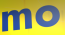
mo